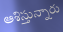
ఆశిస్తున్నారు